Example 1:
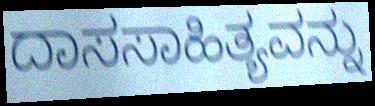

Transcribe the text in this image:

ದಾಸಸಾಹಿತ್ಯವನ್ನು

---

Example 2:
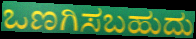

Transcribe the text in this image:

ಒಣಗಿಸಬಹುದು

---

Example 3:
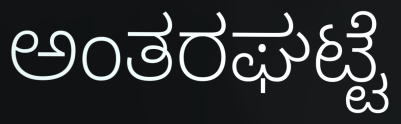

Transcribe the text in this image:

ಅಂತರಘಟ್ಟೆ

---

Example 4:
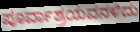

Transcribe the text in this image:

ಪೂರ್ವಾಶ್ರಯವನಳಿದು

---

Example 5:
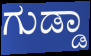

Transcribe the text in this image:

ಗುಡ್ಡಾ